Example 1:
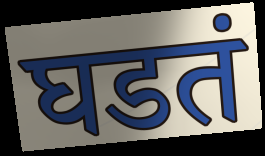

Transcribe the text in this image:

घडतं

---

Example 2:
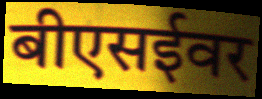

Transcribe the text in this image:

बीएसईवर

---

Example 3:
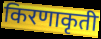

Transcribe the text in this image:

किरणाकृती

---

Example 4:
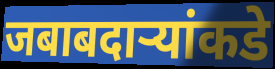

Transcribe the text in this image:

जबाबदाऱ्यांकडे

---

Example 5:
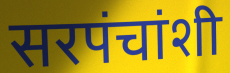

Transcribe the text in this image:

सरपंचांशी